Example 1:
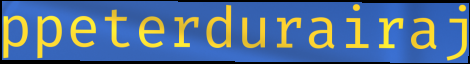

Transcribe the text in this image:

ppeterdurairaj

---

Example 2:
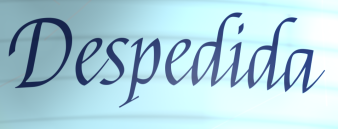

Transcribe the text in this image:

Despedida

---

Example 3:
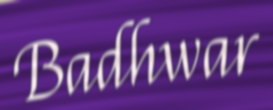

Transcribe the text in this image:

Badhwar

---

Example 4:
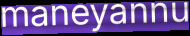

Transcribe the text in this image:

maneyannu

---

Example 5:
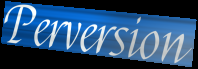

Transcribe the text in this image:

Perversion